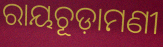
ରାୟଚୂଡ଼ାମଣୀ